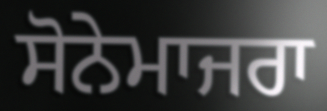
ਸੋਨੇਮਾਜਰਾ